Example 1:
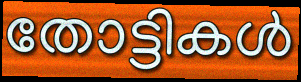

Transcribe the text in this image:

തോട്ടികൾ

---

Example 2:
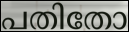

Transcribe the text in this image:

പതിതോ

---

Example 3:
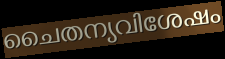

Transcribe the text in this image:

ചൈതന്യവിശേഷം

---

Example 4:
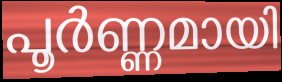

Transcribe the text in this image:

പൂർണ്ണമായി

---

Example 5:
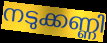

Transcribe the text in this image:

നടുക്കണ്ണി